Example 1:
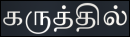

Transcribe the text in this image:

கருத்தில்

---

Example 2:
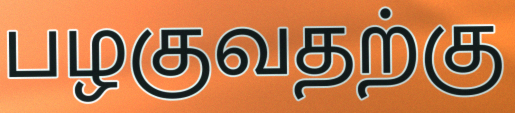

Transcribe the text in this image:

பழகுவதற்கு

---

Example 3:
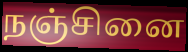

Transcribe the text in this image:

நஞ்சினை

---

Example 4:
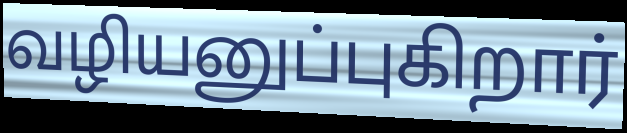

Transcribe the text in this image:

வழியனுப்புகிறார்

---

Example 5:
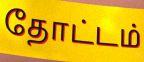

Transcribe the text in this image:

தோட்டம்